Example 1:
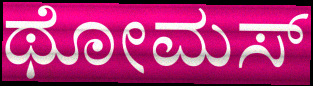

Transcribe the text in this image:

ಥೋಮಸ್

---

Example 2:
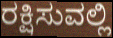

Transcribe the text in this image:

ರಕ್ಷಿಸುವಲ್ಲಿ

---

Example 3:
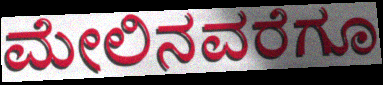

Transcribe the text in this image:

ಮೇಲಿನವರೆಗೂ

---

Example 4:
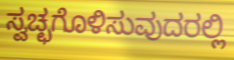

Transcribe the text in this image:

ಸ್ವಚ್ಛಗೊಳಿಸುವುದರಲ್ಲಿ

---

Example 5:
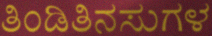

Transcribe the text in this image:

ತಿಂಡಿತಿನಸುಗಳ